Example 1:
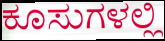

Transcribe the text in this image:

ಕೂಸುಗಳಲ್ಲಿ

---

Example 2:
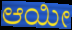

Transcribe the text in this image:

ಆಯೀ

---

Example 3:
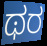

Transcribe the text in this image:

ಥರ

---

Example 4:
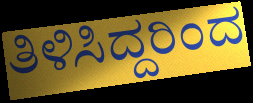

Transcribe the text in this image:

ತಿಳಿಸಿದ್ದರಿಂದ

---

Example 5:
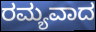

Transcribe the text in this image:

ರಮ್ಯವಾದ